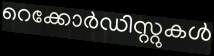
റെക്കോർഡിസ്റ്റുകൾ